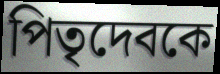
পিতৃদেবকে